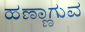
ಹಣ್ಣಾಗುವ